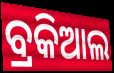
ବ୍ରକିଆଲ